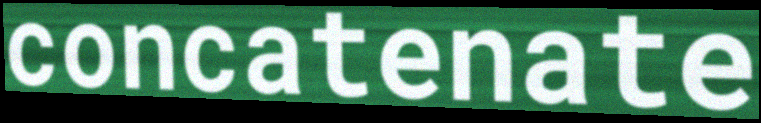
concatenate